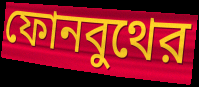
ফোনবুথের